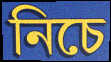
নিচে